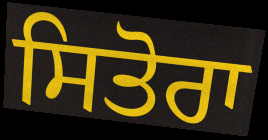
ਸਿਤੋਰਾ